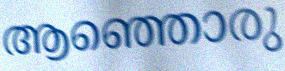
ആഞ്ഞൊരു